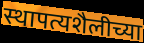
स्थापत्यशैलीच्या